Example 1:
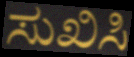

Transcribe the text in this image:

ಸುಖಿಸಿ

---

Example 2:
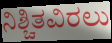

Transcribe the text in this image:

ನಿಶ್ಚಿತವಿರಲು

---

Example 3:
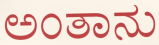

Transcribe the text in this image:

ಅಂತಾನು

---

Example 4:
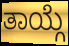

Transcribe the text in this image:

ತಾಯ್ಗೆ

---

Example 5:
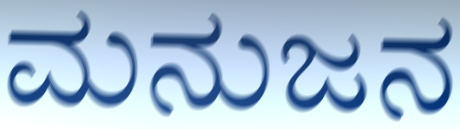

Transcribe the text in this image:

ಮನುಜನ